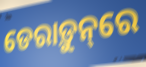
ଡେରାଡ଼ୁନ୍‌ରେ